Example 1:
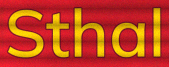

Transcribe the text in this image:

Sthal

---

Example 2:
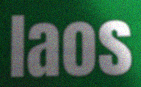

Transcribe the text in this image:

laos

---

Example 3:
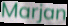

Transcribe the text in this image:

Marjan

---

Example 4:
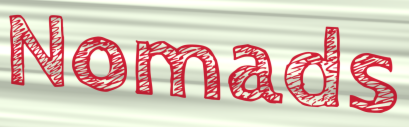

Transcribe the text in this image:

Nomads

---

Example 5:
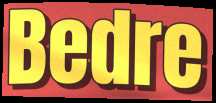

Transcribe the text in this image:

Bedre